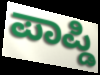
ಪಾಪ್ಡಿ